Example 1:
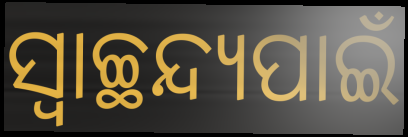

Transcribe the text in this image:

ସ୍ୱାଚ୍ଛନ୍ଦ୍ୟପାଇଁ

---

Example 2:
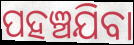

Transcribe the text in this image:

ପହଞ୍ଚଯିବା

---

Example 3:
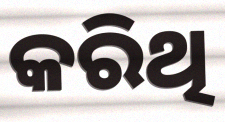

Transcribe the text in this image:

କରିଥି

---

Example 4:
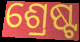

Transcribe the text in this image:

ଶ୍ରେଷ୍ଟ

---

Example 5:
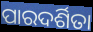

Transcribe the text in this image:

ପାରଦର୍ଶିତା